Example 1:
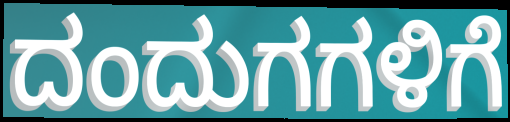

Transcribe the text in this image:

ದಂದುಗಗಳಿಗೆ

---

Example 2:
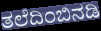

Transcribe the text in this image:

ತಲೆದಿಂಬಿನಡಿ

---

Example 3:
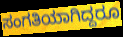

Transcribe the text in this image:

ಸಂಗತಿಯಾಗಿದ್ದರೂ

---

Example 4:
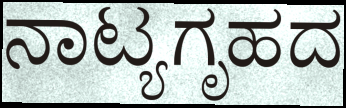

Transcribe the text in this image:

ನಾಟ್ಯಗೃಹದ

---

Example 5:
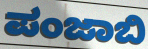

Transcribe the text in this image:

ಪಂಜಾಬಿ